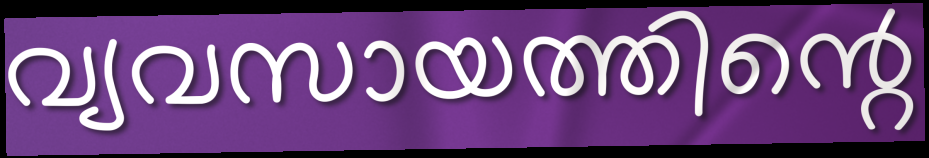
വ്യവസായത്തിന്റെ